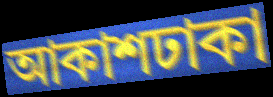
আকাশঢাকা